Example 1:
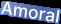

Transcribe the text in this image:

Amoral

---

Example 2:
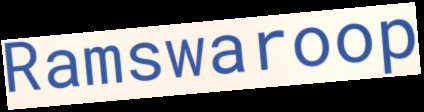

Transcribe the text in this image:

Ramswaroop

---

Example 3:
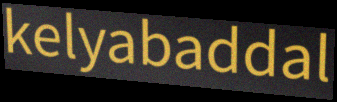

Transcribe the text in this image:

kelyabaddal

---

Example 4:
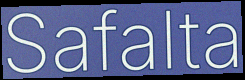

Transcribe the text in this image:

Safalta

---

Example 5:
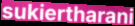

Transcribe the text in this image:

sukiertharani